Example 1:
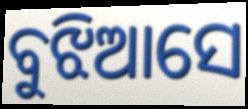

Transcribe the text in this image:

ବୁଝିଆସେ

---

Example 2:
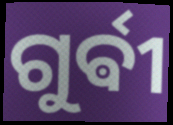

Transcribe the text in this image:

ଗୁର୍ଵୀ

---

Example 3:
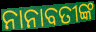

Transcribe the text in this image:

ନାନାବତୀଙ୍କ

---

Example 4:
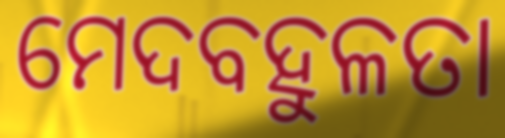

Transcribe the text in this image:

ମେଦବହୁଳତା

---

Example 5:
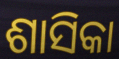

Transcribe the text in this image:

ଶାସିକା